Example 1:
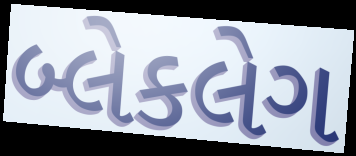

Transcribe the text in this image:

બ્લેકલેગ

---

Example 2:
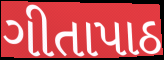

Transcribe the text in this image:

ગીતાપાઠ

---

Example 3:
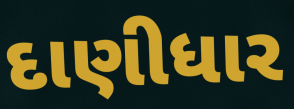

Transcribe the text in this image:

દાણીધાર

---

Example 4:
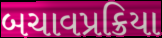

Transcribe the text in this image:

બચાવપ્રક્રિયા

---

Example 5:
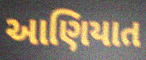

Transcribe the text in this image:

આણિયાત